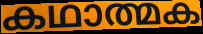
കഥാത്മക